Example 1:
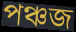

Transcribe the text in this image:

পঞ্চজ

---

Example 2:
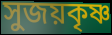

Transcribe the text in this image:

সুজয়কৃষ্ণ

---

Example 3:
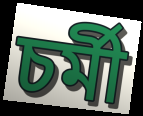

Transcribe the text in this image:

চর্মী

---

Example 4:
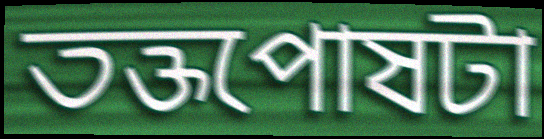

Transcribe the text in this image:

তক্তপোষটা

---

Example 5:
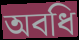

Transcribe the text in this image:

অবধি